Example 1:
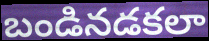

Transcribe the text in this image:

బండినడకలా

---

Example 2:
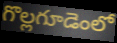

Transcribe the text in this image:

గొల్లగూడెంలో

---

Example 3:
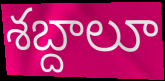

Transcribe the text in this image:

శబ్దాలూ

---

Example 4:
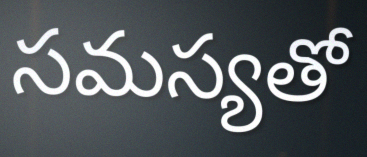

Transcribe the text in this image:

సమస్యతో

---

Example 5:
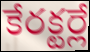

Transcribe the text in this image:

కేరక్టర్లే